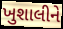
ખુશાલીને